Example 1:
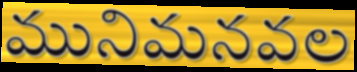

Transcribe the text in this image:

మునిమనవల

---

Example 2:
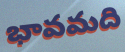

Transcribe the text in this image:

భావమది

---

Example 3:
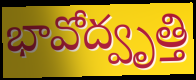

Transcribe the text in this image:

భావోద్వృత్తి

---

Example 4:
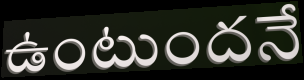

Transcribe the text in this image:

ఉంటుందనే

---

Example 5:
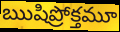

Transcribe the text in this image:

ఋషిప్రోక్తమూ